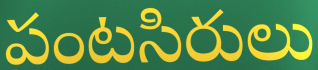
పంటసిరులు